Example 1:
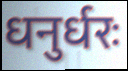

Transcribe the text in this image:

धनुर्धरः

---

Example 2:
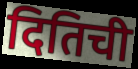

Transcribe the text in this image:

दितिची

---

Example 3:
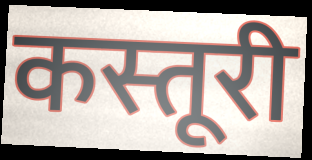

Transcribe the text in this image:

कस्तूरी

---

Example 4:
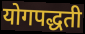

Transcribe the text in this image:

योगपद्धती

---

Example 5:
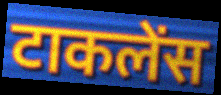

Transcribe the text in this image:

टाकलेंस